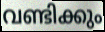
വണ്ടിക്കും